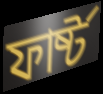
ফাৰ্ষ্ট